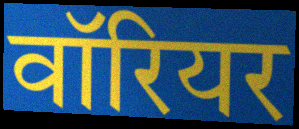
वॉरियर